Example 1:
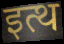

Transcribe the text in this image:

इत्थ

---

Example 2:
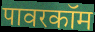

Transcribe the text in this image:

पावरकॉम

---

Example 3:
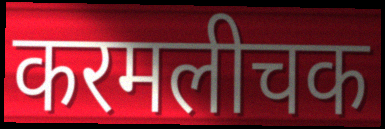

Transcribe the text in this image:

करमलीचक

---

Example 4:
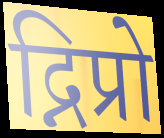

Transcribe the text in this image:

द्निप्रो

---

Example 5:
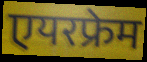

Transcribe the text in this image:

एयरफ्रेम